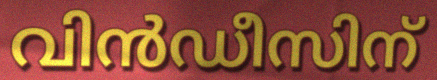
വിൻഡീസിന്